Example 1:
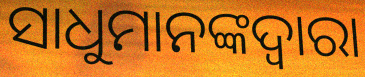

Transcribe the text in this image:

ସାଧୁମାନଙ୍କଦ୍ଵାରା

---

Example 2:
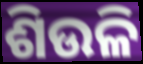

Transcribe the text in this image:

ଶିଉଳି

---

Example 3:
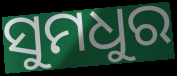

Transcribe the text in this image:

ସୁମଧୁର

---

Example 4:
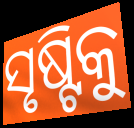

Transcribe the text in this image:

ସୃଷ୍ଟିକୁ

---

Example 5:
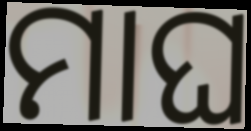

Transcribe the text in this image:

ମାଘ